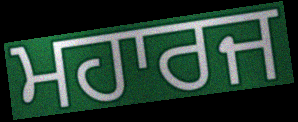
ਮਹਾਰਜ